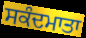
ਸਕੰਦਮਾਤਾ